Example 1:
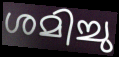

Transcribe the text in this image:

ശമിച്ചു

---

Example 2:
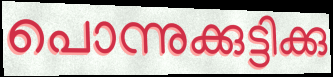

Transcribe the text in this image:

പൊന്നുക്കുട്ടിക്കു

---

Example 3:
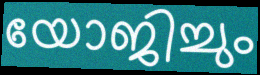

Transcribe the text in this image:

യോജിച്ചും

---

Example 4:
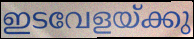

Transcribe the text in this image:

ഇടവേളയ്ക്കു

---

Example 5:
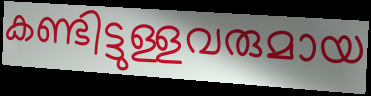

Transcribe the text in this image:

കണ്ടിട്ടുള്ളവരുമായ